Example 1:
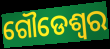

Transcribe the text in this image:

ଗୌଡେଶ୍ୱର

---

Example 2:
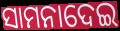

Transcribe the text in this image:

ସାମନାଦେଇ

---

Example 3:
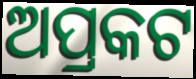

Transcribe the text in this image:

ଅପ୍ରକଟ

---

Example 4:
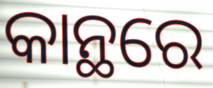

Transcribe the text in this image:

କାନ୍ଥରେ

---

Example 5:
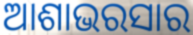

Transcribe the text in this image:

ଆଶାଭରସାର